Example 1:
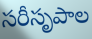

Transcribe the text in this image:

సరీసృపాల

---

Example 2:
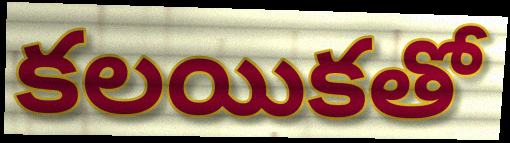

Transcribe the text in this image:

కలయికతో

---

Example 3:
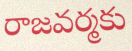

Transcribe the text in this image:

రాజవర్మకు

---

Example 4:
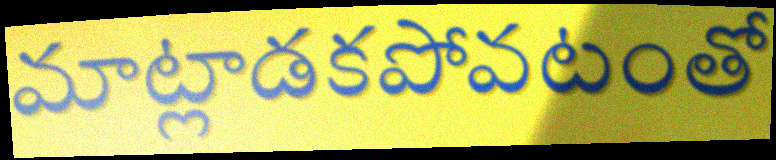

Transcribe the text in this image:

మాట్లాడకపోవటంతో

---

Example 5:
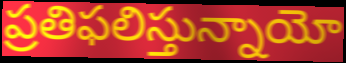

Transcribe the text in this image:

ప్రతిఫలిస్తున్నాయో